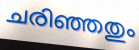
ചരിഞ്ഞതും